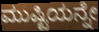
ಮುಷ್ಟಿಯನ್ನೇ